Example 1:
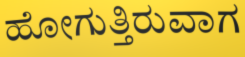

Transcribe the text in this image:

ಹೋಗುತ್ತಿರುವಾಗ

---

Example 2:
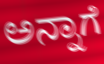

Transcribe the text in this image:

ಅನ್ನಾಗೆ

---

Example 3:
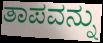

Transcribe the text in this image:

ತಾಪವನ್ನು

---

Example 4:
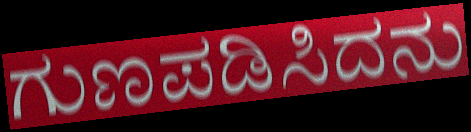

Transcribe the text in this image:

ಗುಣಪಡಿಸಿದನು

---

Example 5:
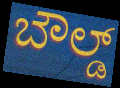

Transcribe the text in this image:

ಬೌಲ್ಡ್